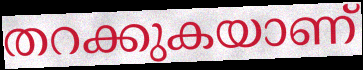
തറക്കുകയാണ്